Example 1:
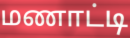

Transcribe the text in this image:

மணாட்டி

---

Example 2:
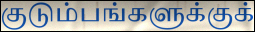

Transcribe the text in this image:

குடும்பங்களுக்குக்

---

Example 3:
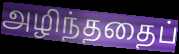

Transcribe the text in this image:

அழிந்ததைப்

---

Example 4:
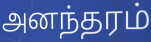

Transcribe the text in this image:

அனந்தரம்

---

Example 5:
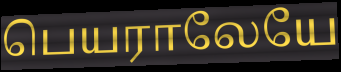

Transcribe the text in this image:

பெயராலேயே